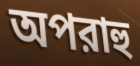
অপরাহু